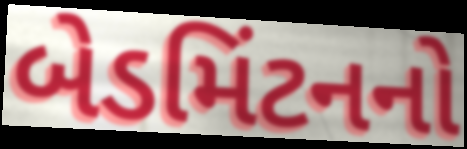
બેડમિંટનનો